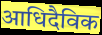
आधिदैविक